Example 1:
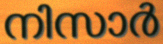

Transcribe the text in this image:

നിസാർ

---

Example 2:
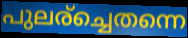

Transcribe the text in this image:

പുലര്ച്ചെതന്നെ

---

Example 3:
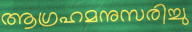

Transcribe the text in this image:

ആഗ്രഹമനുസരിച്ചു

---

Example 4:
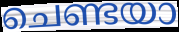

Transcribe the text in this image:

ചെണ്ടയാ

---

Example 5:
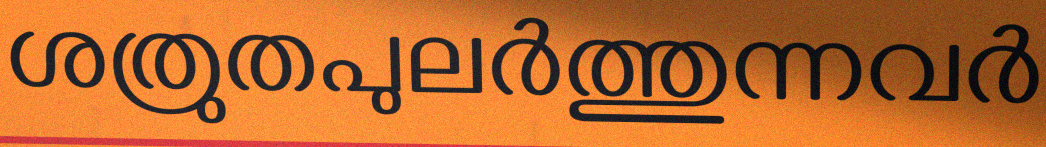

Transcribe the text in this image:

ശത്രുതപുലർത്തുന്നവർ